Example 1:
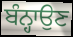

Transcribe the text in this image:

ਬੰਨ੍ਹਾਉਣ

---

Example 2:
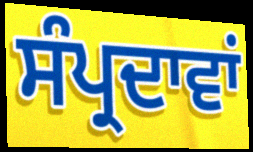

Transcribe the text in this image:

ਸੰਪ੍ਰਦਾਵਾਂ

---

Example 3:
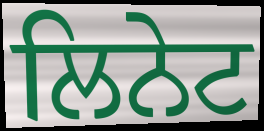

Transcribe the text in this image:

ਲਿਨੇਟ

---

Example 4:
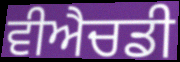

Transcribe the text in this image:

ਵੀਐਚਡੀ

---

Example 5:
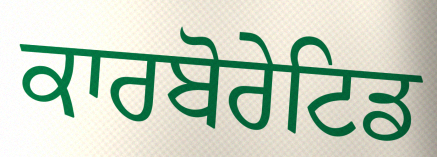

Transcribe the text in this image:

ਕਾਰਬੋਰੇਟਿਡ